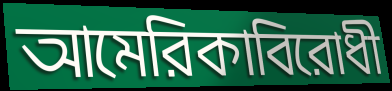
আমেরিকাবিরোধী